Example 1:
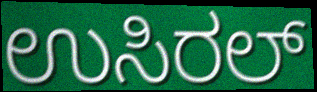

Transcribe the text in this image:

ಉಸಿರಲ್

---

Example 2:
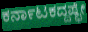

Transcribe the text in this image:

ಕರ್ನಾಟಕದ್ದಷ್ಟೇ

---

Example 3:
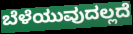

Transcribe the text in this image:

ಬೆಳೆಯುವುದಲ್ಲದೆ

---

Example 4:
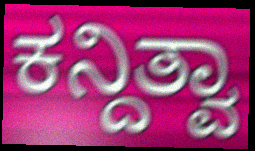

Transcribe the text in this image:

ಕನ್ದಿತ್ವಾ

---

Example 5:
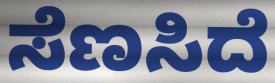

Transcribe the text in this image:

ಸೆಣಸಿದೆ